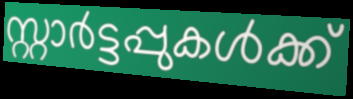
സ്റ്റാർട്ടപ്പുകൾക്ക്